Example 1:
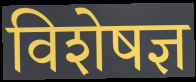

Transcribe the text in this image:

विशेषज्ञ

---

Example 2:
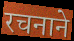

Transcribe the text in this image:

रचनाने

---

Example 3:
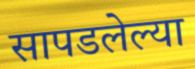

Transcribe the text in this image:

सापडलेल्‍या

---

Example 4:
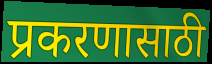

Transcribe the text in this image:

प्रकरणासाठी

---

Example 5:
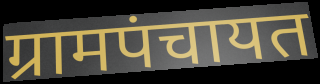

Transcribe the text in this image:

ग्रामपंचायत